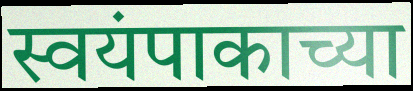
स्वयंपाकाच्या